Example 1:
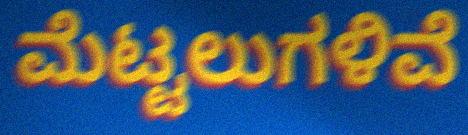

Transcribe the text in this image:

ಮೆಟ್ಟಲುಗಳಿವೆ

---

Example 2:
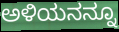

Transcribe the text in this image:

ಅಳಿಯನನ್ನೂ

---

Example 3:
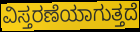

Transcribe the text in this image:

ವಿಸ್ತರಣೆಯಾಗುತ್ತದೆ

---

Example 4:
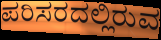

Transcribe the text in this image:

ಪರಿಸರದಲ್ಲಿರುವ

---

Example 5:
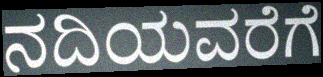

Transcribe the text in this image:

ನದಿಯವರೆಗೆ